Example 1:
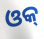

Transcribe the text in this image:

ଓକ୍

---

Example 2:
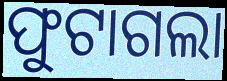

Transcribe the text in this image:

ଫୁଟାଗଲା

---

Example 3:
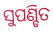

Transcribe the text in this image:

ସୁପଣ୍ଡିତ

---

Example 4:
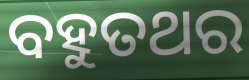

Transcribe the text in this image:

ବହୁତଥର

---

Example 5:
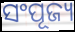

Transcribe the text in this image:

ସଂପୂଜ୍ଯ